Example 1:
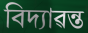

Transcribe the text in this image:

বিদ্যাৱন্ত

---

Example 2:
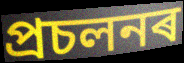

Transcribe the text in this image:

প্ৰচলনৰ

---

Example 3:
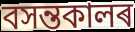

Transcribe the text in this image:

বসন্তকালৰ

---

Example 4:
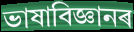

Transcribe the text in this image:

ভাষাবিজ্ঞানৰ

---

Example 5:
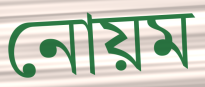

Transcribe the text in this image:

নোয়ম